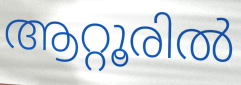
ആറ്റൂരിൽ